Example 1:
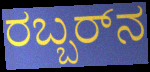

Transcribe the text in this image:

ರಬ್ಬರ್‌ನ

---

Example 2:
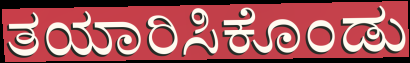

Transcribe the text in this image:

ತಯಾರಿಸಿಕೊಂಡು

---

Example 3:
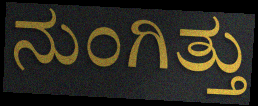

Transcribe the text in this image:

ನುಂಗಿತ್ತು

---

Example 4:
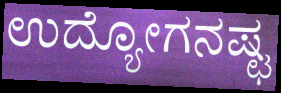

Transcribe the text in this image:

ಉದ್ಯೋಗನಷ್ಟ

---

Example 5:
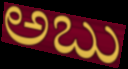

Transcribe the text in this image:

ಅಬು